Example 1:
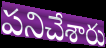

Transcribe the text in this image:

పనిచేశారు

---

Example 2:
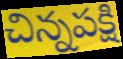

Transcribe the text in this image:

చిన్నపక్షి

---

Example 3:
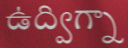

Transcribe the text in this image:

ఉద్విగ్నా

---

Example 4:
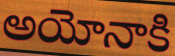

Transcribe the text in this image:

అయోనాకి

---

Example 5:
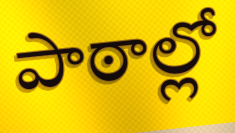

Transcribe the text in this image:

పాఠాల్లో